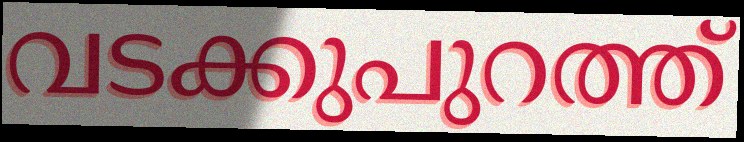
വടക്കുപുറത്ത്